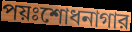
পয়ঃশোধনাগার